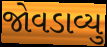
જોવડાવ્યુ